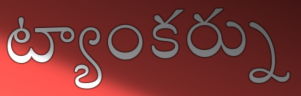
ట్యాంకర్ను